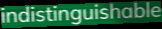
indistinguishable